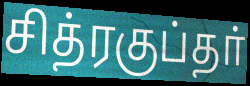
சித்ரகுப்தர்